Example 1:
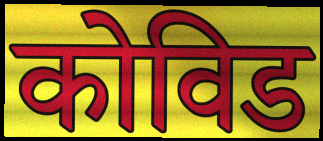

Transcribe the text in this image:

कोविड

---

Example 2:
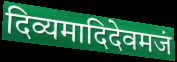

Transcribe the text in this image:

दिव्यमादिदेवमजं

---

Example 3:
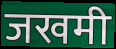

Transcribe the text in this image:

जखमी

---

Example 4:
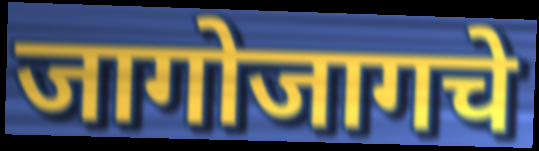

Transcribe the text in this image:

जागोजागचे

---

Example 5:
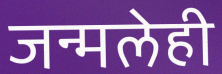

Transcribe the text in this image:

जन्मलेही